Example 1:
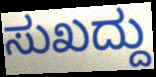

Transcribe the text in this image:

ಸುಖದ್ದು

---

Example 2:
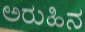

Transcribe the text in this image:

ಅರುಹಿನ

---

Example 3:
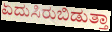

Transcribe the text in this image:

ಏದುಸಿರುಬಿಡುತ್ತಾ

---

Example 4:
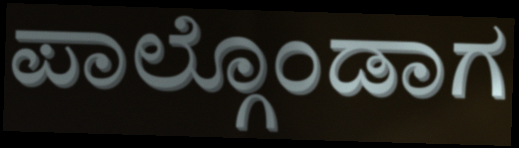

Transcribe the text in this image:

ಪಾಲ್ಗೊಂಡಾಗ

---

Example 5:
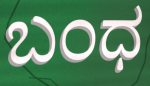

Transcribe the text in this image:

ಬಂಧ